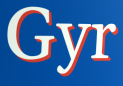
Gyr